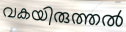
വകയിരുത്തൽ